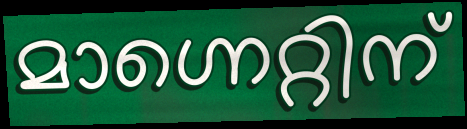
മാഗ്നെറ്റിന്